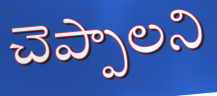
చెప్పాలని